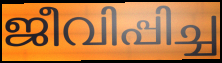
ജീവിപ്പിച്ച